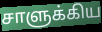
சாளுக்கிய